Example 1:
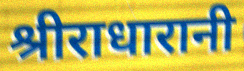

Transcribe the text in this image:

श्रीराधारानी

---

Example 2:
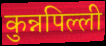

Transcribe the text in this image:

कुन्नपिल्ली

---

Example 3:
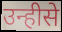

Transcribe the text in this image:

उन्हीसे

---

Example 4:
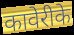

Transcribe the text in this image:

कावेरीके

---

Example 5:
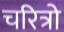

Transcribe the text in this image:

चरित्रो